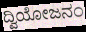
ದ್ವಿಯೋಜನಂ